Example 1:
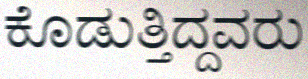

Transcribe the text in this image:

ಕೊಡುತ್ತಿದ್ದವರು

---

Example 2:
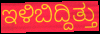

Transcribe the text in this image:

ಇಳಿಬಿದ್ದಿತ್ತು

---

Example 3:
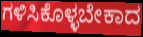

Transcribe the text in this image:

ಗಳಿಸಿಕೊಳ್ಳಬೇಕಾದ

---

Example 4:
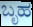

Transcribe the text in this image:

ಬೃಹ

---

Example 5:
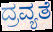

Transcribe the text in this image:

ದ್ರವ್ಯತೆ